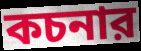
কচনার